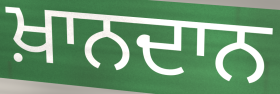
ਖ਼ਾਨਦਾਨ